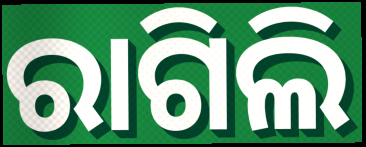
ରାଗିଲି